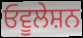
ਓਵੂਲੇਸ਼ਨ